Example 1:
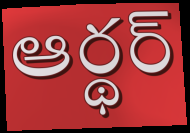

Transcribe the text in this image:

ఆర్థర్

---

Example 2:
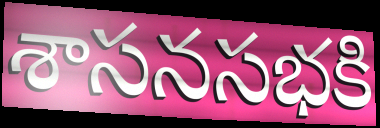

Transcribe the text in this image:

శాసనసభకి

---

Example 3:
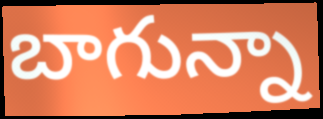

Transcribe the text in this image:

బాగున్నా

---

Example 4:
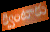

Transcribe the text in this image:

క్వింటాకు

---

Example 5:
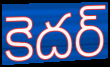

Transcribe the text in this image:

కెదర్